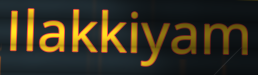
Ilakkiyam